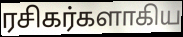
ரசிகர்களாகிய